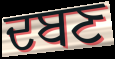
ਦਬਣ